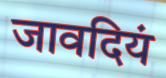
जावदियं